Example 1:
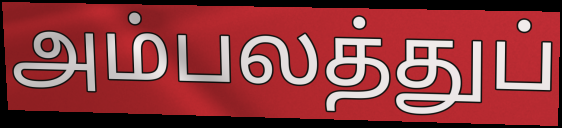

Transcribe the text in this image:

அம்பலத்துப்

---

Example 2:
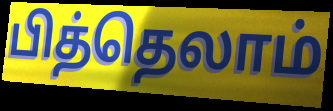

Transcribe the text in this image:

பித்தெலாம்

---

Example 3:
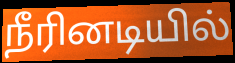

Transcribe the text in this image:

நீரினடியில்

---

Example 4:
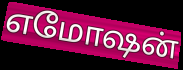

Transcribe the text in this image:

எமோஷன்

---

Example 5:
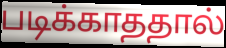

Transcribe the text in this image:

படிக்காததால்